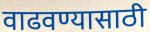
वाढवण्यासाठी